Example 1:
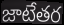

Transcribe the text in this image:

జాటేతర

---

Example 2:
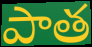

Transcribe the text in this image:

పాత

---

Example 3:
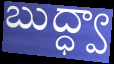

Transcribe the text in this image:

బుద్ధ్వా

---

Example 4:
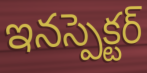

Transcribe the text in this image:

ఇనస్పెక్టర్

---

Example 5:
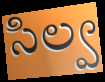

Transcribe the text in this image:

సిల్వ